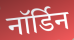
नॉर्डिन